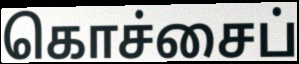
கொச்சைப்